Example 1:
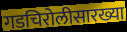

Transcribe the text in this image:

गडचिरोलीसारख्या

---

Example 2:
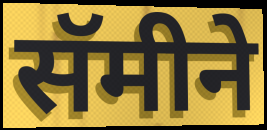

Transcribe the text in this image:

सॅमीने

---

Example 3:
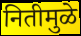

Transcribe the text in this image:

नितीमुळे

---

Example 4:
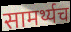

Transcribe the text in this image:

सामर्थ्यच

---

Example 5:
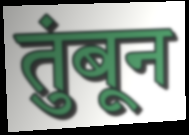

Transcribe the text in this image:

तुंबून